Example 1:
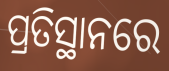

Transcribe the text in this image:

ପ୍ରତିସ୍ଥାନରେ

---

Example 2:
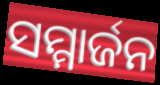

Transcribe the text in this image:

ସମ୍ମାର୍ଜନ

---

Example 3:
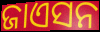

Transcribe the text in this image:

ଜାଏସନ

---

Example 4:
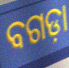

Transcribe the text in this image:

ବଗଡ଼ା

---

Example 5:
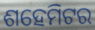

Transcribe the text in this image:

ଶହେମିଟର